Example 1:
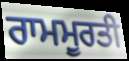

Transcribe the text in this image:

ਰਾਮਮੂਰਤੀ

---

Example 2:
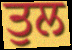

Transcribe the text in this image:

ਤੁਲ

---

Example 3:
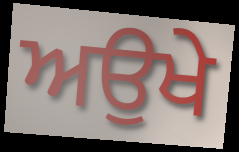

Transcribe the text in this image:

ਅਉਖੇ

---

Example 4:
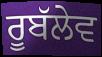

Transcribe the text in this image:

ਰੂਬੱਲੇਵ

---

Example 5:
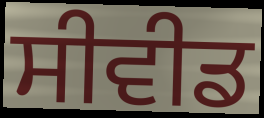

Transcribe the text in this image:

ਸੀਵੀਡ